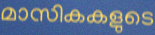
മാസികകളുടെ